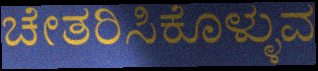
ಚೇತರಿಸಿಕೊಳ್ಳುವ